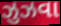
ઝુઝવા